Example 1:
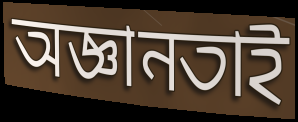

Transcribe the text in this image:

অজ্ঞানতাই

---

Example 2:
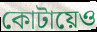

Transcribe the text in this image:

কোটায়েও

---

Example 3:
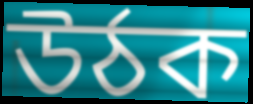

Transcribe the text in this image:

উঠক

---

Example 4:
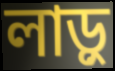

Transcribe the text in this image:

লাড়ু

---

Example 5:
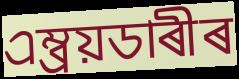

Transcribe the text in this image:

এম্ব্ৰয়ডাৰীৰ